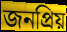
জনপ্ৰিয়